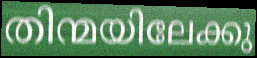
തിന്മയിലേക്കു